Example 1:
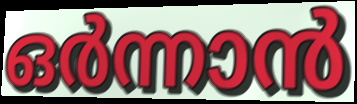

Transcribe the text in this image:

ഒർന്നാൻ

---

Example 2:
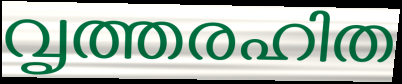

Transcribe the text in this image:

വൃത്തരഹിത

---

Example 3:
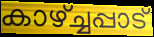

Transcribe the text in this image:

കാഴ്ച്ചപ്പാട്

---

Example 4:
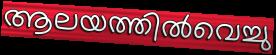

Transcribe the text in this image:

ആലയത്തിൽവെച്ചു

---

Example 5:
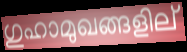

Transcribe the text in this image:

ഗുഹാമുഖങ്ങളില്